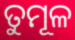
ତୁମୂଳ